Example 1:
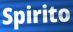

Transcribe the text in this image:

Spirito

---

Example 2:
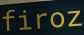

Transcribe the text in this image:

firoz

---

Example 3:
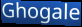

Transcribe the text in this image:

Ghogale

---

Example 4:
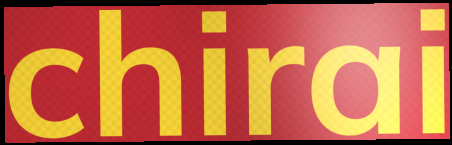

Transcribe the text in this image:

chirai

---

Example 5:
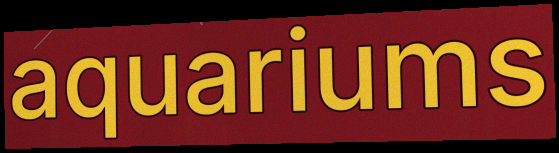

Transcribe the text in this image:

aquariums